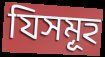
যিসমূহ